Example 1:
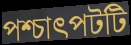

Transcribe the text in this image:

পশ্চাৎপটটি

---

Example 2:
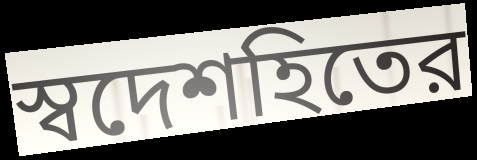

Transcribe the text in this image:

স্বদেশহিতের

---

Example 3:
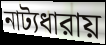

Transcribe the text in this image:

নাট্যধারায়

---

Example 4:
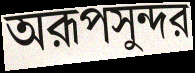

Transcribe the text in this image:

অরূপসুন্দর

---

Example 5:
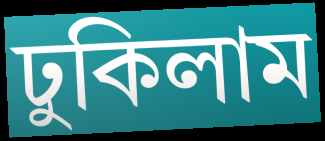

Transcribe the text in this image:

ঢুকিলাম